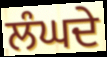
ਲੰਘਦੇ